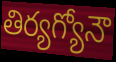
తిర్యగ్యోనౌ